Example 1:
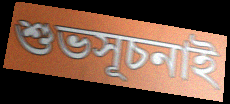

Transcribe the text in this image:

শুভসূচনাই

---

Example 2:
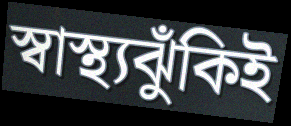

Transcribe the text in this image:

স্বাস্থ্যঝুঁকিই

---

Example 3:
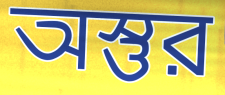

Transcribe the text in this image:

অস্তুর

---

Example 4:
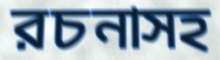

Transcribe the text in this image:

রচনাসহ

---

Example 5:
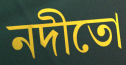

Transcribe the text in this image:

নদীতো